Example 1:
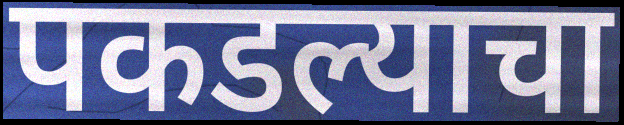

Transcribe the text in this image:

पकडल्याचा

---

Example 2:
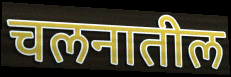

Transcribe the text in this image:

चलनातील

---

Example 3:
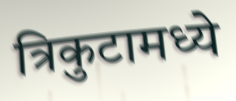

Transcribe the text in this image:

त्रिकुटामध्ये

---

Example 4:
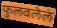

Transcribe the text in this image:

फुलवलेलं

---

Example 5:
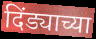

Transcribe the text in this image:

दिंड्याच्या